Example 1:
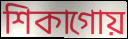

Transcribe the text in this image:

শিকাগোয়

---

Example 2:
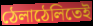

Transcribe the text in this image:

ঠেলাঠেলিতেই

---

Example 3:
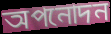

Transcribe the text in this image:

অপনোদন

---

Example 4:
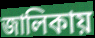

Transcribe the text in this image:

জালিকায়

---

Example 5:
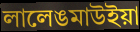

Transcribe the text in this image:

লালেঙমাউইয়া